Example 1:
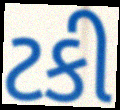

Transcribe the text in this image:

ટકી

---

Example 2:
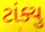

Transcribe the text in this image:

ટાંક્યુ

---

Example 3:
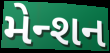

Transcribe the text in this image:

મેન્શન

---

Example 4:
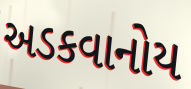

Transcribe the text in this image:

અડકવાનોય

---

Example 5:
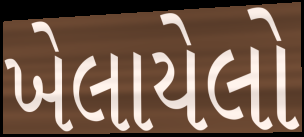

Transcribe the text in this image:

ખેલાયેલો